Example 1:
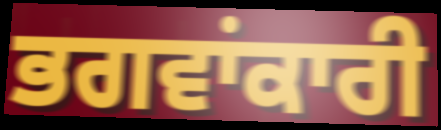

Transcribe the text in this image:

ਭਗਵਾਂਕਾਰੀ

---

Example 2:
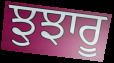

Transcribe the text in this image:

ਝੁਝਾਰੂ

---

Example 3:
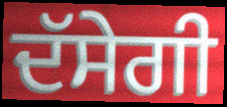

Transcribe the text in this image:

ਦੱਸੇਗੀ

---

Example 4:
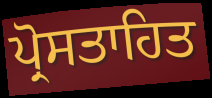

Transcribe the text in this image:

ਪ੍ਰੋਸਤਾਹਿਤ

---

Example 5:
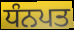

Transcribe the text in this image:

ਧੰਨਪਤ